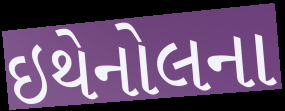
ઇથેનોલના